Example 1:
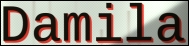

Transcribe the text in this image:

Damila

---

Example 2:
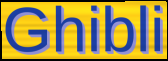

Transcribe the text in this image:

Ghibli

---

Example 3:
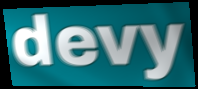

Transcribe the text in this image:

devy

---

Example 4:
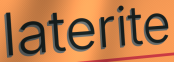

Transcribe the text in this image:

laterite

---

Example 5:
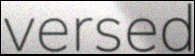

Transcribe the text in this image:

versed